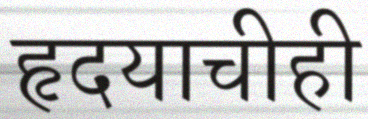
हृदयाचीही